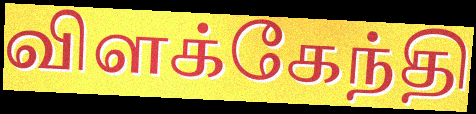
விளக்கேந்தி